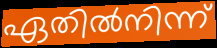
ഏതിൽനിന്ന്